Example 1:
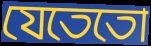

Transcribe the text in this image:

যেতেতো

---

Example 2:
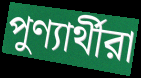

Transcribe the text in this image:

পুণ্যার্থীরা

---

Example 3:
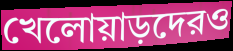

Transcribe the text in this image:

খেলোয়াড়দেরও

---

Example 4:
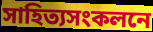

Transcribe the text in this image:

সাহিত্যসংকলনে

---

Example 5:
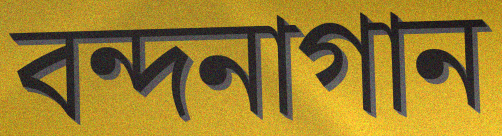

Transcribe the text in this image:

বন্দনাগান